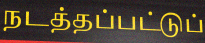
நடத்தப்பட்டுப்